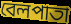
বেলপাতা